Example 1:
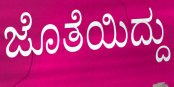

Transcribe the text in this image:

ಜೊತೆಯಿದ್ದು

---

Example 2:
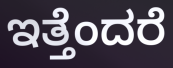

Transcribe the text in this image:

ಇತ್ತೆಂದರೆ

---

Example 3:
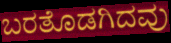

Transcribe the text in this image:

ಬರತೊಡಗಿದವು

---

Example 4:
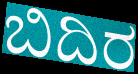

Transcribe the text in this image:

ಬಿದಿರ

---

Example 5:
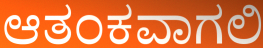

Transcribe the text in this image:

ಆತಂಕವಾಗಲಿ